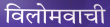
विलोमवाची